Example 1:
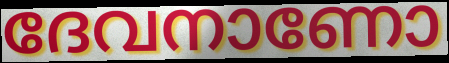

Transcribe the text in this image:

ദേവനാണോ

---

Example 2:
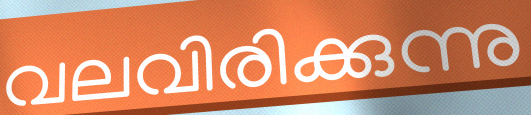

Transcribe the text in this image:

വലവിരിക്കുന്നു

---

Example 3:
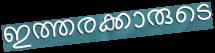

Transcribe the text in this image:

ഇത്തരക്കാരുടെ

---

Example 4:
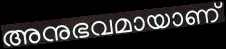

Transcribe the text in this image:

അനുഭവമായാണ്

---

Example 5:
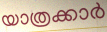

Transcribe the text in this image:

യാത്രക്കാർ